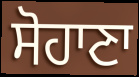
ਸੋਹਾਣਾ